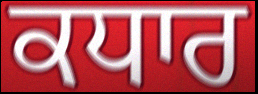
ਕਧਾਰ